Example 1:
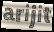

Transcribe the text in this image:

arijit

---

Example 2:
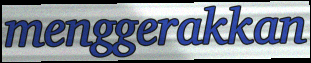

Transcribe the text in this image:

menggerakkan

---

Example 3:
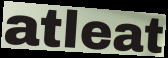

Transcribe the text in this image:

atleat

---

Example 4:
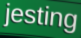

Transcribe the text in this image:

jesting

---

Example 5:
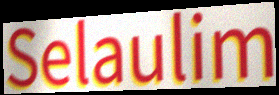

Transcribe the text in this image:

Selaulim